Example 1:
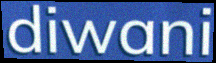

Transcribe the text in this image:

diwani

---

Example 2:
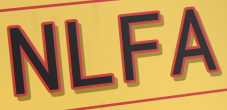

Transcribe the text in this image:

NLFA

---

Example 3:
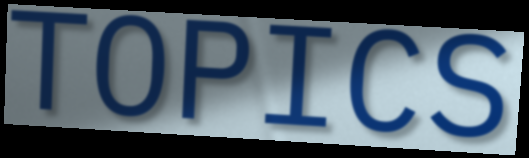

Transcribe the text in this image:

TOPICS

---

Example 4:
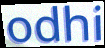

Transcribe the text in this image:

odhi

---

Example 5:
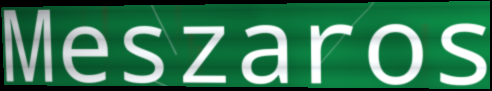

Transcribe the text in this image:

Meszaros